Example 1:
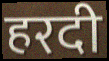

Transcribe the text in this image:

हरदी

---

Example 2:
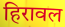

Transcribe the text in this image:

हिरावल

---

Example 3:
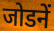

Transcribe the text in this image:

जोडनें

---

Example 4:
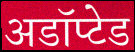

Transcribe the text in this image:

अडॉप्टेड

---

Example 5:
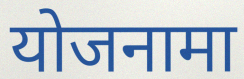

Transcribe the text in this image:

योजनामा